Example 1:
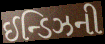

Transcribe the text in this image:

ઈન્ડિઝની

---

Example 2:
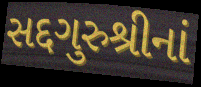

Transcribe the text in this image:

સદ્દગુરુશ્રીનાં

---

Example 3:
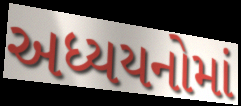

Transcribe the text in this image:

અધ્યયનોમાં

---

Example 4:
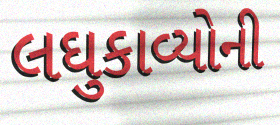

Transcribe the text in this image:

લઘુકાવ્યોની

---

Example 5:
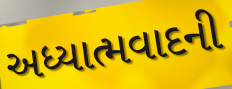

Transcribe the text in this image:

અધ્યાત્મવાદની